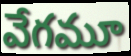
వేగమూ